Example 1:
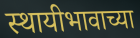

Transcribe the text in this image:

स्थायीभावाच्या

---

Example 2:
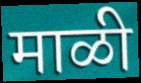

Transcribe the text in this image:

माळी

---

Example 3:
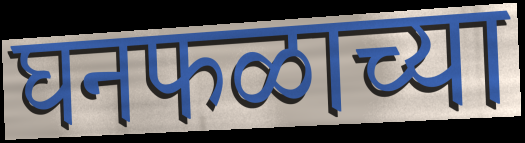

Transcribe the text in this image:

घनफळाच्या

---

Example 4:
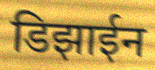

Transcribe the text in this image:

डिझाईन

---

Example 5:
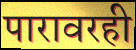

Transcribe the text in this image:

पारावरही